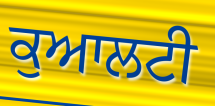
ਕੁਆਲਟੀ